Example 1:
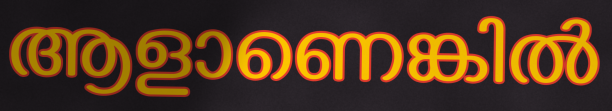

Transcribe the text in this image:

ആളാണെങ്കിൽ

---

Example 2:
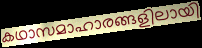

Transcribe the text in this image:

കഥാസമാഹാരങ്ങളിലായി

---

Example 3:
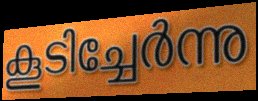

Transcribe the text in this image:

കൂടിച്ചേർന്നു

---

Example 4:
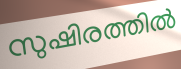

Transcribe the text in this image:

സുഷിരത്തിൽ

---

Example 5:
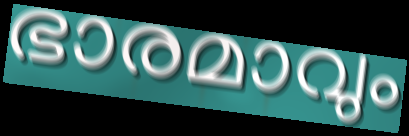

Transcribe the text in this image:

ഭാരമാവും